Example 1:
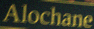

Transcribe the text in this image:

Alochane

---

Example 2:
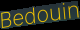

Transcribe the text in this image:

Bedouin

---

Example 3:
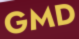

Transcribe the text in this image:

GMD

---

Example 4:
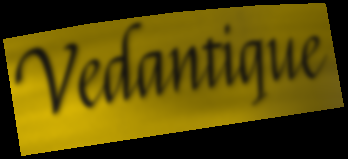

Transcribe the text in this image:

Vedantique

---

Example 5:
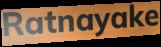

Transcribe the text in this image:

Ratnayake